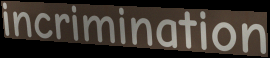
incrimination